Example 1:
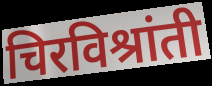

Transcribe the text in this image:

चिरविश्रांती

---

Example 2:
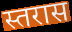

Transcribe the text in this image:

स्तरास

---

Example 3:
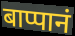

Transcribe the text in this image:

बाप्पानं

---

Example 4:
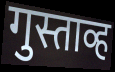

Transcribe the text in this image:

गुस्ताव्ह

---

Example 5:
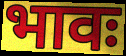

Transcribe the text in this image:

भावः